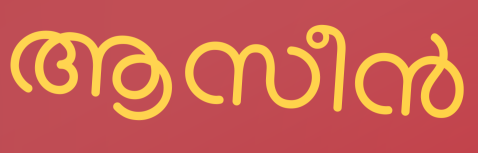
ആസീൻ